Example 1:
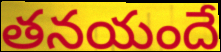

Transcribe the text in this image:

తనయందే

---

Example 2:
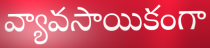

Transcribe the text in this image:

వ్యావసాయికంగా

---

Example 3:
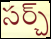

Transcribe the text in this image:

సర్చ్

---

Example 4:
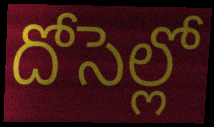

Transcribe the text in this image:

దోసెల్లో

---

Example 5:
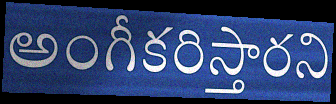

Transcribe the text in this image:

అంగీకరిస్తారని